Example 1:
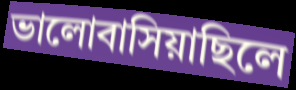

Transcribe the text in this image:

ভালোবাসিয়াছিলে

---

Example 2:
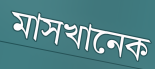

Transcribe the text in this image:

মাসখানেক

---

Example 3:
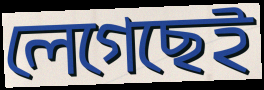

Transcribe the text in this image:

লেগেছেই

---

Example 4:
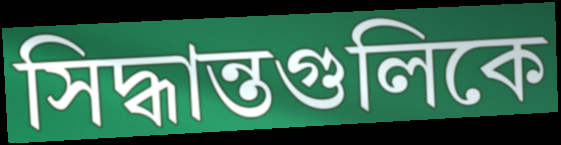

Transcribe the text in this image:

সিদ্ধান্তগুলিকে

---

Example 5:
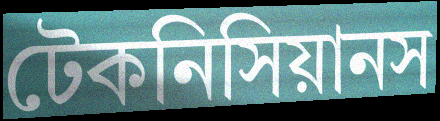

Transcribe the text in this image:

টেকনিসিয়ানস